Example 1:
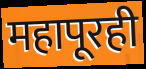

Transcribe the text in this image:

महापूरही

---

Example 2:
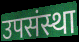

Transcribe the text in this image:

उपसंस्था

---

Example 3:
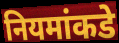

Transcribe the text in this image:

नियमांकडे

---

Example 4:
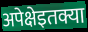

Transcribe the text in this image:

अपेक्षेइतक्या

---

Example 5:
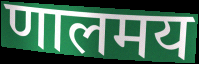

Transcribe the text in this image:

णालमय